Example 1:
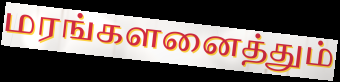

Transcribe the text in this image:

மரங்களனைத்தும்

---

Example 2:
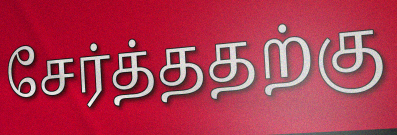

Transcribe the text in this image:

சேர்த்ததற்கு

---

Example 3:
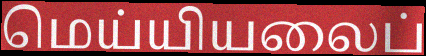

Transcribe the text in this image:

மெய்யியலைப்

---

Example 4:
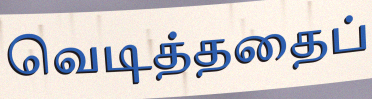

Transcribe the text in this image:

வெடித்ததைப்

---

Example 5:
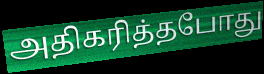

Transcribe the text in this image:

அதிகரித்தபோது